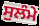
ਸੁਲੰਮੇ